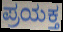
ಪ್ರಯಕ್ತ